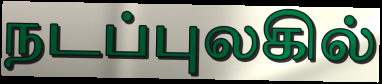
நடப்புலகில்